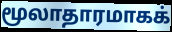
மூலாதாரமாகக்